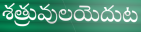
శత్రువులయెదుట